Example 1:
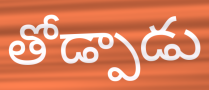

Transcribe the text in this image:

తోడ్పాడు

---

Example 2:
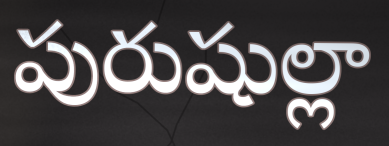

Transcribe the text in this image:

పురుషుల్లా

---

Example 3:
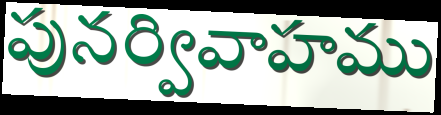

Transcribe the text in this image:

పునర్వివాహము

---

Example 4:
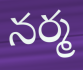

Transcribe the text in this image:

నర్మ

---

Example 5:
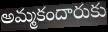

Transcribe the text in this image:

అమ్మకందారుకు